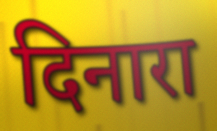
दिनारा